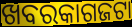
ଖବରକାଗଜଟା